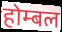
होम्बल